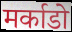
मर्काडो